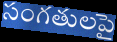
సంగతులపై